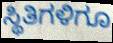
ಸ್ಥಿತಿಗಳಿಗೂ